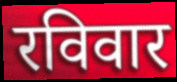
रविवार